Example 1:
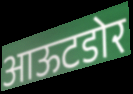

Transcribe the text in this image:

आऊटडोर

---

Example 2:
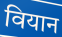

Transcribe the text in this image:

वियान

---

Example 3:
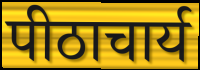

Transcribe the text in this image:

पीठाचार्य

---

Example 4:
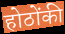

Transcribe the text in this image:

होठोंकी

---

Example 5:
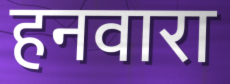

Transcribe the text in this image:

हनवारा